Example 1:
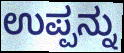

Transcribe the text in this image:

ಉಪ್ಪನ್ನು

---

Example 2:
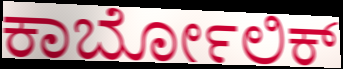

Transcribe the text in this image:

ಕಾರ್ಬೋಲಿಕ್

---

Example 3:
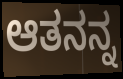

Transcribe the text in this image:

ಆತನನ್ನ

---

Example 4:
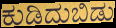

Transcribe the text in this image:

ಕುಡಿದುಬಿಡು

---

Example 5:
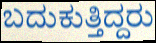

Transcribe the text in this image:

ಬದುಕುತ್ತಿದ್ದರು